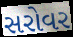
સરોવર